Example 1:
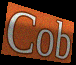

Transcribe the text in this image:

Cob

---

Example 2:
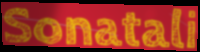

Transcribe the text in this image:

Sonatali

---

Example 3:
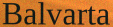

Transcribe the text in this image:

Balvarta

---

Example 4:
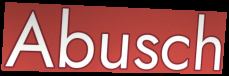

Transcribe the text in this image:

Abusch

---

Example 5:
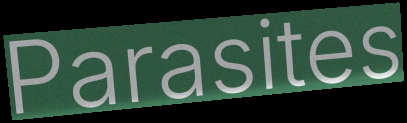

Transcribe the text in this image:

Parasites